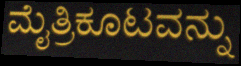
ಮೈತ್ರಿಕೂಟವನ್ನು